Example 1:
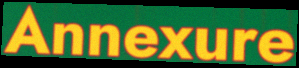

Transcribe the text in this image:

Annexure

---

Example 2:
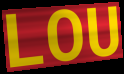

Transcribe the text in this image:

LOU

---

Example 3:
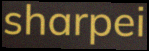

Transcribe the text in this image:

sharpei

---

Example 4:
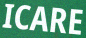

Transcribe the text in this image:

ICARE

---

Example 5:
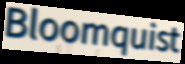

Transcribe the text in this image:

Bloomquist